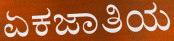
ಏಕಜಾತಿಯ